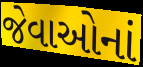
જેવાઓનાં